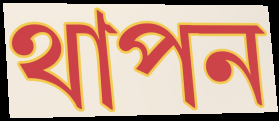
থাপন